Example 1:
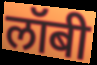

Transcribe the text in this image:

लॉबी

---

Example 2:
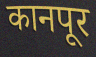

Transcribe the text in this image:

कानपूर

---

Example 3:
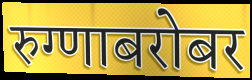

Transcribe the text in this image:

रुग्णाबरोबर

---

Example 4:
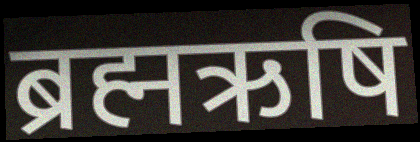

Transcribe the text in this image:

ब्रह्मऋषि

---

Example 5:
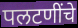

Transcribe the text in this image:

पलटणींचे